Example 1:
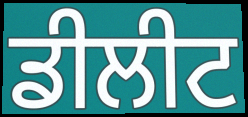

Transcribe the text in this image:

ਡੀਲੀਟ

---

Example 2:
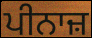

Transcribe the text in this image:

ਪੀਨਾਜ਼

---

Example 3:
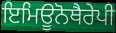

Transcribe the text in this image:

ਇਮਿਊਨੋਥੈਰੇਪੀ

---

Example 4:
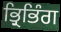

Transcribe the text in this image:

ਭ੍ਰਿਭਿੰਗ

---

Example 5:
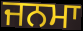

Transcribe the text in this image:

ਜਨਮਾ